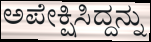
ಅಪೇಕ್ಷಿಸಿದ್ದನ್ನು